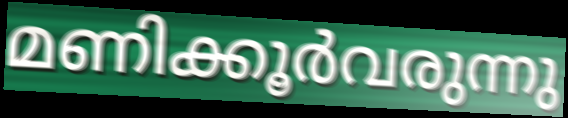
മണിക്കൂർവരുന്നു